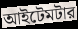
আইটেমটার